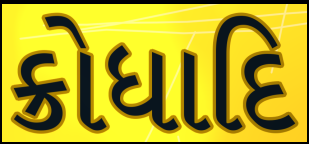
ક્રોધાદિ